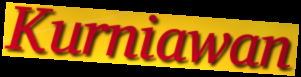
Kurniawan